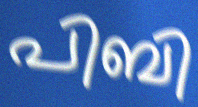
പിബി